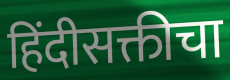
हिंदीसक्तीचा